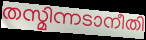
തസ്മിന്നടാനീതി